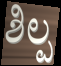
ಶಿಲ್ಪ